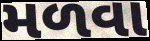
મળવા